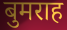
बुमराह